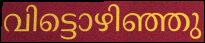
വിട്ടൊഴിഞ്ഞു